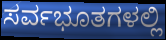
ಸರ್ವಭೂತಗಳಲ್ಲಿ